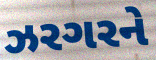
ઝરગરને